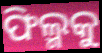
ଫିଲ୍ମକୁ